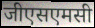
जीएसएमसी